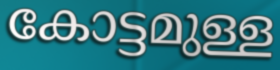
കോട്ടമുള്ള